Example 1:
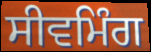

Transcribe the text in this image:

ਸੀਵਮਿੰਗ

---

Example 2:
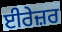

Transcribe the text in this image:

ਈਰੇਜ਼ਰ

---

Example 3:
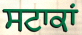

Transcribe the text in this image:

ਸਟਾਕਾਂ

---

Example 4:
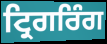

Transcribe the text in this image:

ਟ੍ਰਿਗਰਿੰਗ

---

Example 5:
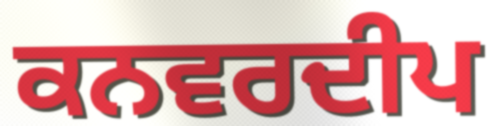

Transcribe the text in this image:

ਕਨਵਰਦੀਪ